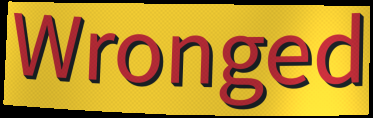
Wronged